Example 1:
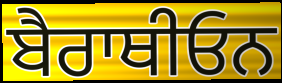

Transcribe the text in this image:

ਬੈਰਾਥੀਓਨ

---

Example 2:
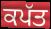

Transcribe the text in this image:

ਕਪੱਤ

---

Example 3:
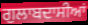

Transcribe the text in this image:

ਗੁਲਾਬਦਾਸੀਆਂ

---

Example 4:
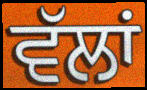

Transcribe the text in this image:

ਵੱਲਾਂ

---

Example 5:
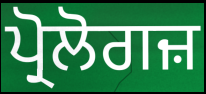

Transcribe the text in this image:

ਪ੍ਰੋਲੋਗਜ਼